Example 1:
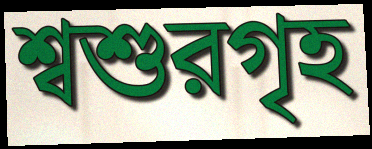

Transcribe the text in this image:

শ্বশুরগৃহ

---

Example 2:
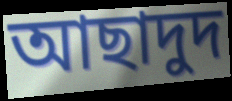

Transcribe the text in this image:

আছাদুদ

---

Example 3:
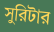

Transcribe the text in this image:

সুরিটার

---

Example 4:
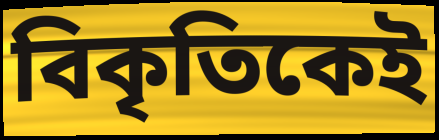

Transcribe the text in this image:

বিকৃতিকেই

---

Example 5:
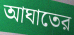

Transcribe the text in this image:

আঘাতের